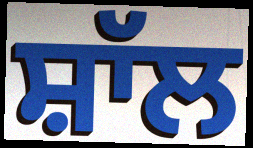
ਸ਼ਾੱਲ